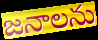
జనాలను